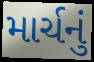
માર્ચનું